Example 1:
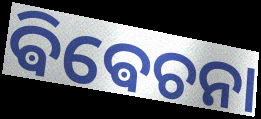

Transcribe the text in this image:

ଵିଵେଚନା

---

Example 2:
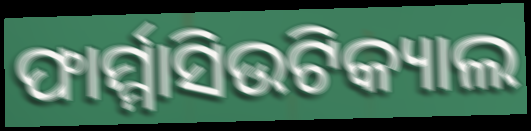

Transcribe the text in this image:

ଫାର୍ମ୍ମାସିଉଟିକ୍ୟାଲ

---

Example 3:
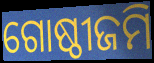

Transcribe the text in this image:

ଗୋଷ୍ଠୀଜମି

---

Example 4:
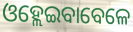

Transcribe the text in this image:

ଓହ୍ଲେଇବାବେଳେ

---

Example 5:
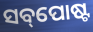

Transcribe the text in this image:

ସବ୍‌ପୋଷ୍ଟ